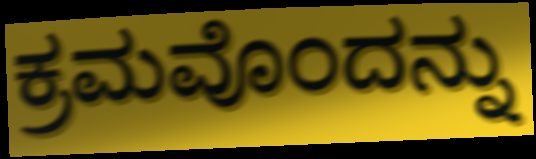
ಕ್ರಮವೊಂದನ್ನು